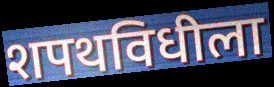
शपथविधीला